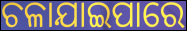
ଚଳାଯାଇପାରେ